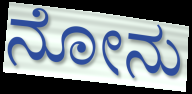
ನೋನು